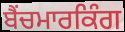
ਬੈਂਚਮਾਰਕਿੰਗ